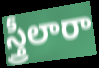
స్త్రీలారా